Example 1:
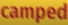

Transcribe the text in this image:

camped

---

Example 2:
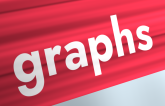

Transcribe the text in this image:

graphs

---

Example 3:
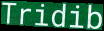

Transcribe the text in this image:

Tridib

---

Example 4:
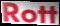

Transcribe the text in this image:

Rott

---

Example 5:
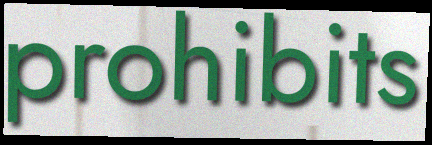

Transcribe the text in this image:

prohibits